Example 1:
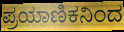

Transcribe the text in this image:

ಪ್ರಯಾಣಿಕನಿಂದ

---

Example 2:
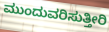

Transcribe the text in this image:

ಮುಂದುವರಿಸುತ್ತೀರಿ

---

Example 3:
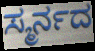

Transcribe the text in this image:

ಸ್ಮರ್ನದ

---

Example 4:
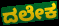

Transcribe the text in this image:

ದಲೇಕ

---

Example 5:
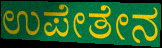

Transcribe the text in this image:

ಉಪೇತೇನ